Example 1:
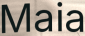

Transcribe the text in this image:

Maia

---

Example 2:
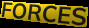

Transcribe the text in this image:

FORCES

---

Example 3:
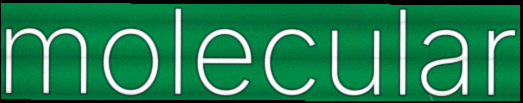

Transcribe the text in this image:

molecular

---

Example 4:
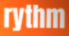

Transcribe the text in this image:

rythm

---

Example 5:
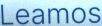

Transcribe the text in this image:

Leamos